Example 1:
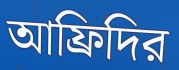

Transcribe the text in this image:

আফ্রিদির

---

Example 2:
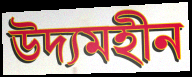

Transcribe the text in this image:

উদ্যমহীন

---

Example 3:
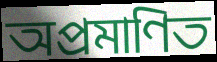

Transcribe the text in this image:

অপ্রমাণিত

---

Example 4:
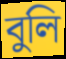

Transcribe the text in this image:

বুলি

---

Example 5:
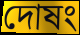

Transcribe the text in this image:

দোষং